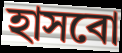
হাসবো